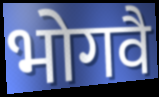
भोगवै